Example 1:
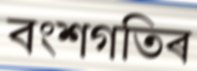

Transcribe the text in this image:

বংশগতিৰ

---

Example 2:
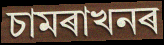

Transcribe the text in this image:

চামৰাখনৰ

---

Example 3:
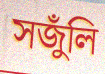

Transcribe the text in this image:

সজুঁলি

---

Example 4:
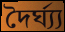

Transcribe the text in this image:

দৈৰ্ঘ্য্য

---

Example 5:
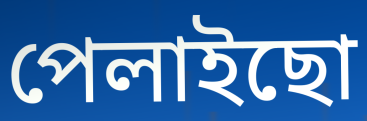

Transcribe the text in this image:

পেলাইছো